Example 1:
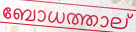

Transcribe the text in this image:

ബോധത്താല്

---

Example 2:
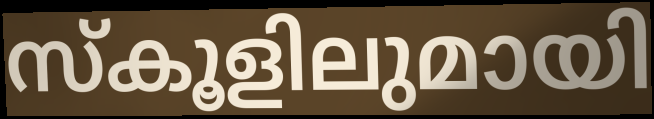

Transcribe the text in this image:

സ്കൂളിലുമായി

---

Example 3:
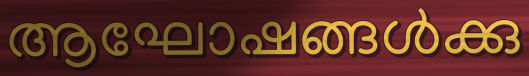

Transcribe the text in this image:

ആഘോഷങ്ങൾക്കു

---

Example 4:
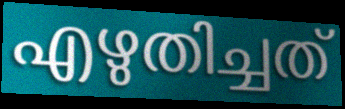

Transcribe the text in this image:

എഴുതിച്ചത്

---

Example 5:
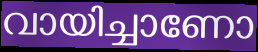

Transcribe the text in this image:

വായിച്ചാണോ